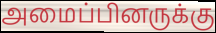
அமைப்பினருக்கு